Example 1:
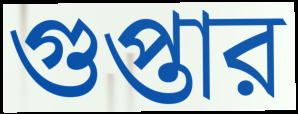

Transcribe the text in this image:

গুপ্তার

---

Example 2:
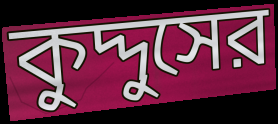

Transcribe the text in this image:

কুদ্দুসের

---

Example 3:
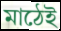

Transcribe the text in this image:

মাঠেই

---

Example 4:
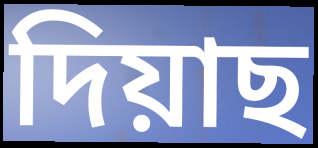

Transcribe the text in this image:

দিয়াছ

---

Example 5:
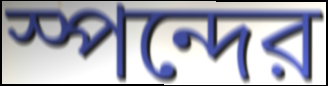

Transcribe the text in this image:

স্পন্দের